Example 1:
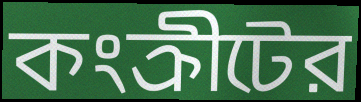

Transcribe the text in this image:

কংক্রীটের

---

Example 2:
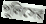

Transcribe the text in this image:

পুলিসের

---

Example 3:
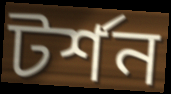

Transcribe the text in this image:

টর্শন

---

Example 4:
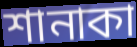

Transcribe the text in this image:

শানাকা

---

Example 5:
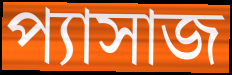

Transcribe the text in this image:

প্যাসাজ